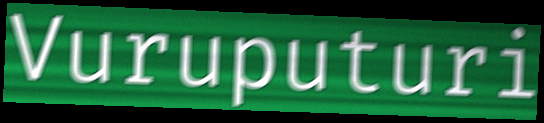
Vuruputuri